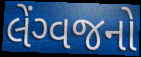
લેંગ્વજનો